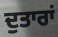
ਦੁਤਾਰਾਂ